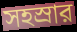
সহস্রার